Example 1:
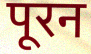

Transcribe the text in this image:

पूरन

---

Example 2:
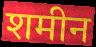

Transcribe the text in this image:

शमीन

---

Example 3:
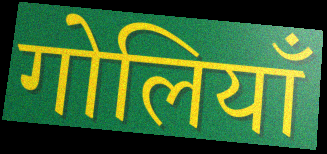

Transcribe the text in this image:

गोलियाँ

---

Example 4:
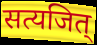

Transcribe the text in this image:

सत्यजित्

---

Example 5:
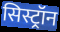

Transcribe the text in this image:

सिस्ट्रॉन